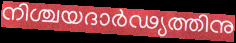
നിശ്ചയദാർഢ്യത്തിനു